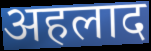
अहलाद